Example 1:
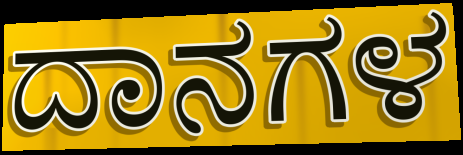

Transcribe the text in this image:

ದಾನಗಳ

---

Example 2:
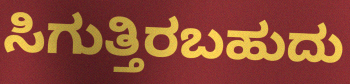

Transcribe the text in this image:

ಸಿಗುತ್ತಿರಬಹುದು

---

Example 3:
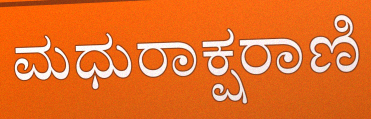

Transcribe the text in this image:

ಮಧುರಾಕ್ಷರಾಣಿ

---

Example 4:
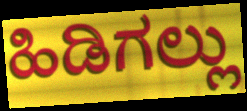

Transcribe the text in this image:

ಹಿಡಿಗಲ್ಲು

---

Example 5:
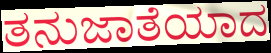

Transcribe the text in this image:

ತನುಜಾತೆಯಾದ